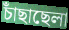
চাঁছাছেলা